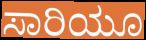
ಸಾರಿಯೂ